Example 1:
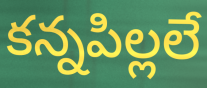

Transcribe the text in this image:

కన్నపిల్లలే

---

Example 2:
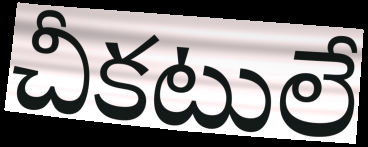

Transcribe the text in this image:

చీకటులే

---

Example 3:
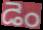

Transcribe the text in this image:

డెం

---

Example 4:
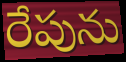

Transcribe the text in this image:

రేపును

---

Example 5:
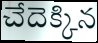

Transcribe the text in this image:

చేదెక్కిన